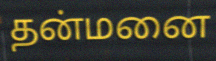
தன்மனை